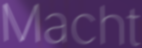
Macht